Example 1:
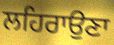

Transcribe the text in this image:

ਲਹਿਰਾਉਣਾ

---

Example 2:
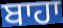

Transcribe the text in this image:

ਬਾਹਾ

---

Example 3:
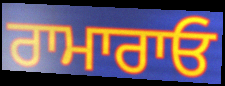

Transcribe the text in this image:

ਰਾਮਾਰਾਓ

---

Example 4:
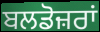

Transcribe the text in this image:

ਬਲਡੋਜ਼ਰਾਂ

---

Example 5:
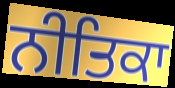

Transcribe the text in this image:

ਨੀਤਿਕਾ